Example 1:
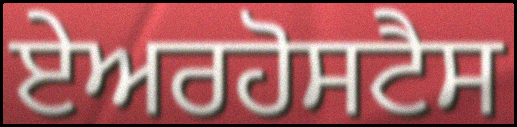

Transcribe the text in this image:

ਏਅਰਹੋਸਟੈਸ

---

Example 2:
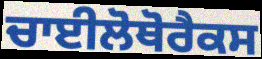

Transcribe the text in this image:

ਚਾਈਲੋਥੋਰੈਕਸ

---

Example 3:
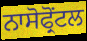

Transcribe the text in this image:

ਨਾਸੋਫ੍ਰੋਂਟਲ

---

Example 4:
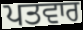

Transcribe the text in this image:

ਪਤਵਾਰ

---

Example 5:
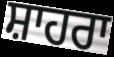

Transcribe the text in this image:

ਸ਼ਾਹਰਾ